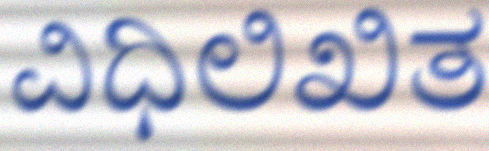
ವಿಧಿಲಿಖಿತ